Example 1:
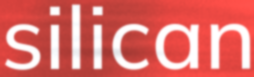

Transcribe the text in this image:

silican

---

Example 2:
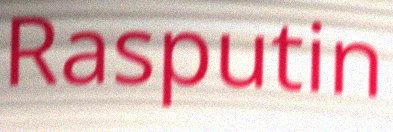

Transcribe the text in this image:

Rasputin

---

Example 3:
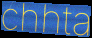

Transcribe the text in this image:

chhta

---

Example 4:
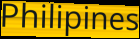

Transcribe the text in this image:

Philipines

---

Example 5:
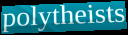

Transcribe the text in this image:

polytheists